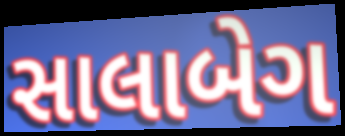
સાલાબેગ